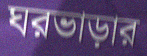
ঘরভাড়ার